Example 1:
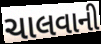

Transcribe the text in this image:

ચાલવાની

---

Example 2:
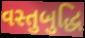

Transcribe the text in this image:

વસ્તુબુદ્ધિ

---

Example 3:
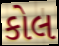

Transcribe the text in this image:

કોલ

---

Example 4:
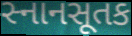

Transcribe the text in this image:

સ્નાનસૂતક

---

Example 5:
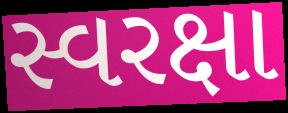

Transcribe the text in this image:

સ્વરક્ષા